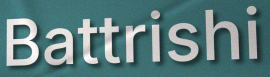
Battrishi